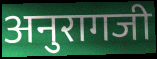
अनुरागजी